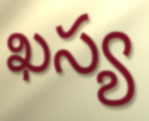
ఖస్య